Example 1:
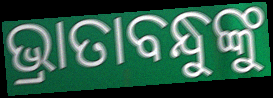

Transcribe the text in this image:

ଭ୍ରାତାବନ୍ଧୁଙ୍କୁ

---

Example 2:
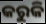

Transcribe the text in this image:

କରୁକି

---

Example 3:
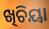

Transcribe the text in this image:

ଖିଚିୟା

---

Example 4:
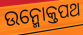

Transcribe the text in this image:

ଉନ୍ମୋକ୍ତପଥ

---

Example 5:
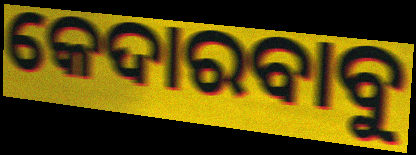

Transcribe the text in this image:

କେଦାରବାବୁ